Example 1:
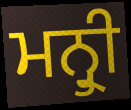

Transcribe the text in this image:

ਮਨ੍ਤ੍ਰੀ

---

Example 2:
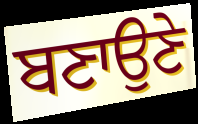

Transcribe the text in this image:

ਬਣਾਉਣੇ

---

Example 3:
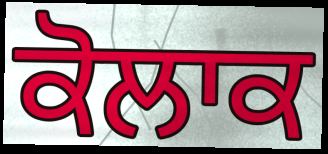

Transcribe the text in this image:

ਕੋਲਾਕ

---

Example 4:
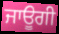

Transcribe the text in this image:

ਜਾਊਗੀ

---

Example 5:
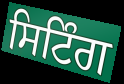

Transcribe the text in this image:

ਸਿਟਿੰਗ